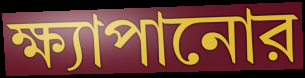
ক্ষ্যাপানোর